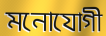
মনোযোগী